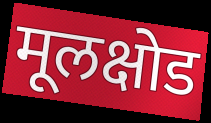
मूलक्षोड